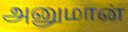
அனுமான்